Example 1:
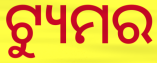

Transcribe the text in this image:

ଟ୍ୟୁମର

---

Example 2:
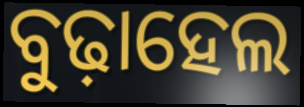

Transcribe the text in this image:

ବୁଢ଼ାହେଲ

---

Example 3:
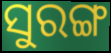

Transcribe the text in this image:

ସୁରଙ୍ଗ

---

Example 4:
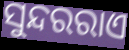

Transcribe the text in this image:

ସୁନ୍ଦରରାଏ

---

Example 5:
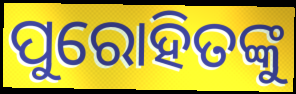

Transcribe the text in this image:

ପୁରୋହିତଙ୍କୁ